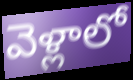
వెళ్లాలో